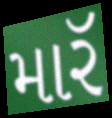
મારૅ